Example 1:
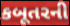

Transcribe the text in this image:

કબૂતરની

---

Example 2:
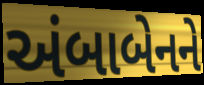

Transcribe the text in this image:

અંબાબેનને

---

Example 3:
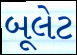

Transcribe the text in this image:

બૂલેટ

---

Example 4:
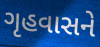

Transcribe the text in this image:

ગૃહવાસને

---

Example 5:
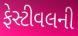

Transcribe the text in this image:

ફેસ્ટીવલની